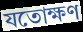
যতোক্ষণ